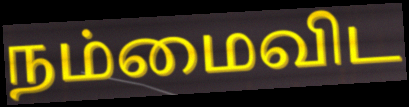
நம்மைவிட